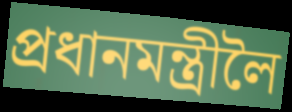
প্ৰধানমন্ত্ৰীলৈ